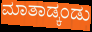
ಮಾತಾಡ್ಕಂಡು